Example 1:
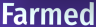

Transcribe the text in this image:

Farmed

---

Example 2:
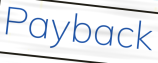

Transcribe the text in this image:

Payback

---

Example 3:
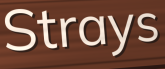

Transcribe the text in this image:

Strays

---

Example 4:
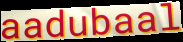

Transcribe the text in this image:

aadubaal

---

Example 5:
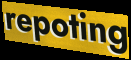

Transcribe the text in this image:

repoting